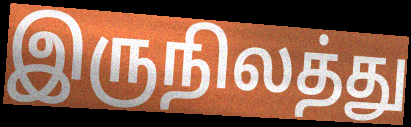
இருநிலத்து